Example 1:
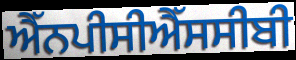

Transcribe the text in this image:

ਐੱਨਪੀਸੀਐੱਸਸੀਬੀ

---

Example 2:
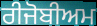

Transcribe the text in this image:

ਰੀਜੋਬੀਅਮ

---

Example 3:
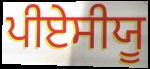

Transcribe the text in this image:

ਪੀਏਸੀਯੂ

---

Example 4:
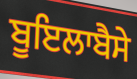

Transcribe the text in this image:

ਬੂਇਲਾਬੈਸੇ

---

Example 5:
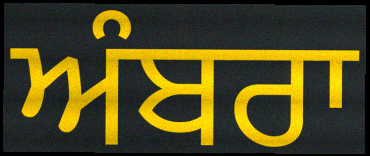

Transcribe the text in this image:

ਅੰਬਰਾ